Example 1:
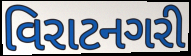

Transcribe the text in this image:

વિરાટનગરી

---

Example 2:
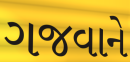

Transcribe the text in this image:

ગજવાને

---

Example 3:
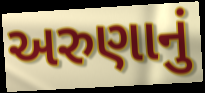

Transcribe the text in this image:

અરુણાનું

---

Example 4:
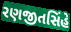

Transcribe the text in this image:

રણજીતસિંહે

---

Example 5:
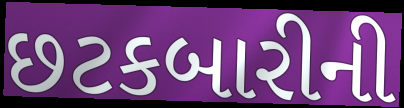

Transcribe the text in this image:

છટકબારીની